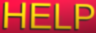
HELP